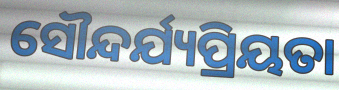
ସୌନ୍ଦର୍ଯ୍ୟପ୍ରିୟତା